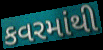
કવરમાંથી